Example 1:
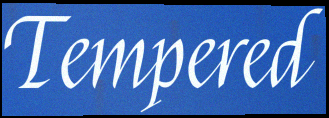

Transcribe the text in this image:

Tempered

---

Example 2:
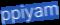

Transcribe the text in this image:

ppiyam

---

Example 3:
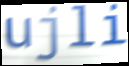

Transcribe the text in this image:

ujli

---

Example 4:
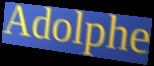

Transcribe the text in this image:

Adolphe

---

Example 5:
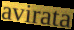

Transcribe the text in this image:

avirata